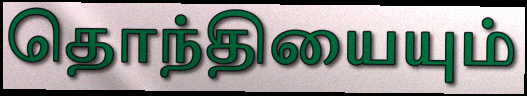
தொந்தியையும்